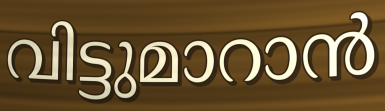
വിട്ടുമാറാൻ